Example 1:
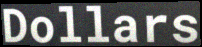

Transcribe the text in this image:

Dollars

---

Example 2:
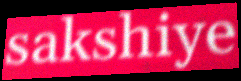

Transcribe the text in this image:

sakshiye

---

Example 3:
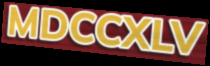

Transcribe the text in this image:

MDCCXLV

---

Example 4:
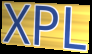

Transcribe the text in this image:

XPL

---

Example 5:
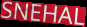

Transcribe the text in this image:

SNEHAL